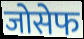
जोसेफ